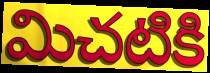
మిచటికి